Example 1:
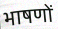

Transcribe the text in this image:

भाषणों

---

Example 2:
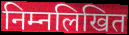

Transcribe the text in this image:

निम्नलिखित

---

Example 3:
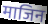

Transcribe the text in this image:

माजिन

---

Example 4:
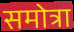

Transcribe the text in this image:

समोत्रा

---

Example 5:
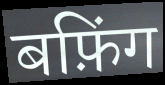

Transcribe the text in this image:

बफ़िंग